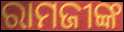
ରାମଜୀଙ୍କ